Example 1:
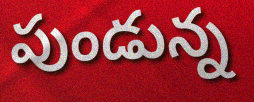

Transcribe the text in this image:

పుండున్న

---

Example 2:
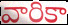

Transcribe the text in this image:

వారికా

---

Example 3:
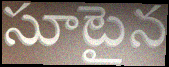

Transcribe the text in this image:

సూటైన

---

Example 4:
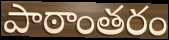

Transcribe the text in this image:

పాఠాంతరం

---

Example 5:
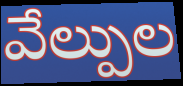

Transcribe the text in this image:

వేల్పుల